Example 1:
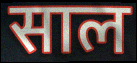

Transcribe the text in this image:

साल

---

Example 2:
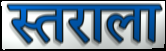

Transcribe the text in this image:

स्तराला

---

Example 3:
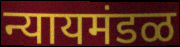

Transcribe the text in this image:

न्यायमंडळ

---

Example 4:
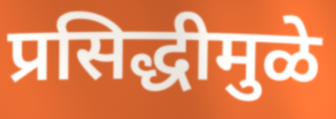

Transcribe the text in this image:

प्रसिद्धीमुळे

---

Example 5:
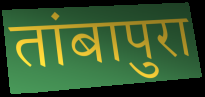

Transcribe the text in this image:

तांबापुरा